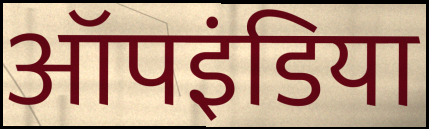
ऑपइंडिया